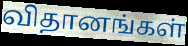
விதானங்கள்